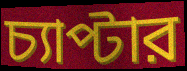
চ্যাপ্টার